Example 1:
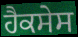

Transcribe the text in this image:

ਹੈਕਸੇਸ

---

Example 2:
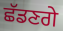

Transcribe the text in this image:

ਛੱਡਣਗੇ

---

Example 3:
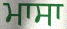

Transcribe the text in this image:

ਮਾਸਾ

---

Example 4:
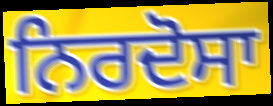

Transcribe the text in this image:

ਨਿਰਦੋਸਾ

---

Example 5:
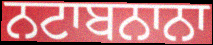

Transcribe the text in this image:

ਨਟਾਬਨਾਨਾ